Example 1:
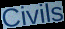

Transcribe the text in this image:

Civils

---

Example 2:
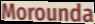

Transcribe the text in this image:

Morounda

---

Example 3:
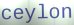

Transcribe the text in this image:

ceylon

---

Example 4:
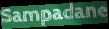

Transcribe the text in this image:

Sampadane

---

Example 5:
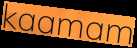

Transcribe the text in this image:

kaamam